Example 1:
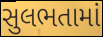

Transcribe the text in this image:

સુલભતામાં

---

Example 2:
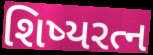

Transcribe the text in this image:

શિષ્યરત્ન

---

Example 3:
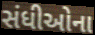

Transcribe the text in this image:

સંધીઓના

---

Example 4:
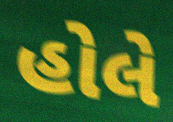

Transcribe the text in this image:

હોલે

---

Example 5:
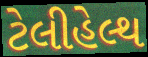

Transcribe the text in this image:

ટેલીહેલ્થ